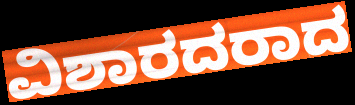
ವಿಶಾರದರಾದ